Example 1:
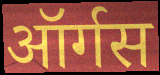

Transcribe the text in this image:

ऑर्गस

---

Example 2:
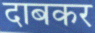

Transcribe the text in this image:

दाबकर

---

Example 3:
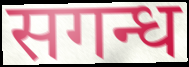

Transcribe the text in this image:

सगन्ध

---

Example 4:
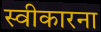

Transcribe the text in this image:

स्वीकारना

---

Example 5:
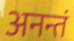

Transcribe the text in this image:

अनन्तं